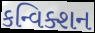
કન્વિક્શન